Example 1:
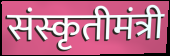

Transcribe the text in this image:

संस्कृतीमंत्री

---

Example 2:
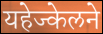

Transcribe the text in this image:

यहेज्केलने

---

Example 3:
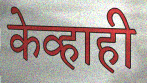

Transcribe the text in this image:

केव्हाही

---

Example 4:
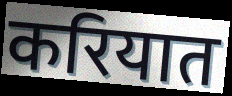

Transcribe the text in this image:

करियात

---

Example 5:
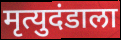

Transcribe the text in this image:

मृत्युदंडाला